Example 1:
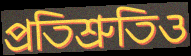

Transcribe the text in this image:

প্ৰতিশ্ৰুতিও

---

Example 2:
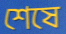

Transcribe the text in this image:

শেষে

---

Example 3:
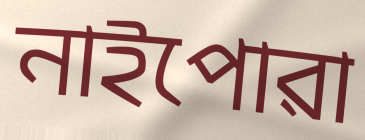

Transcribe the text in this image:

নাইপোৱা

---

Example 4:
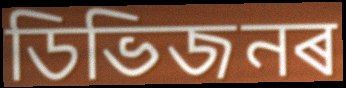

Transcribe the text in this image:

ডিভিজনৰ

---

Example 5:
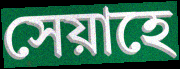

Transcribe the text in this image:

সেয়াহে